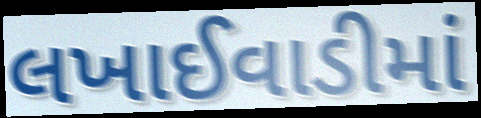
લખાઈવાડીમાં